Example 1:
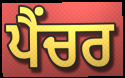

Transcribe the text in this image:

ਪੈਂਚਰ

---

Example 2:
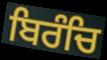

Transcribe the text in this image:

ਬਿਰੰਚਿ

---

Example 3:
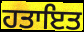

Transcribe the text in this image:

ਹਤਾਇਤ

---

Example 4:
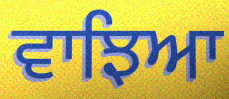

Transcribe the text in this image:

ਵਾਝਿਆ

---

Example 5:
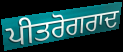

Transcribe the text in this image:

ਪੀਤਰੋਗਰਾਦ